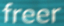
freer